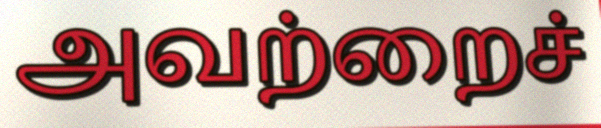
அவற்றைச்